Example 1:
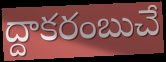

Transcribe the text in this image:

ద్దాకరంబుచే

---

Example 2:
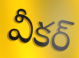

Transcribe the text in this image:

వీకర్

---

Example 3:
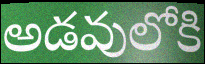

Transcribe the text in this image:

అడవులోకి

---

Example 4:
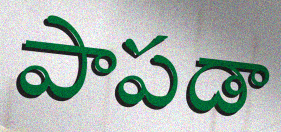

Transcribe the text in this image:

పాపడా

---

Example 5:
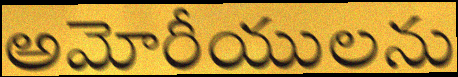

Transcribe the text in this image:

అమోరీయులను